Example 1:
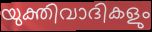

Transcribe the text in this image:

യുക്തിവാദികളും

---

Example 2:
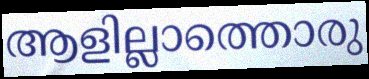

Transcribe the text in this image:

ആളില്ലാത്തൊരു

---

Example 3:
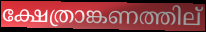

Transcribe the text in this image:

ക്ഷേത്രാങ്കണത്തില്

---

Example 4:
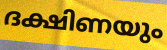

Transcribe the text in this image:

ദക്ഷിണയും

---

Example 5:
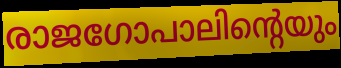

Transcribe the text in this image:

രാജഗോപാലിന്റെയും